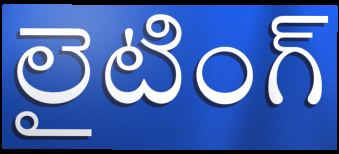
లైటింగ్